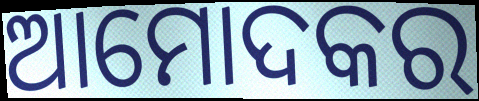
ଆମୋଦକର